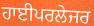
ਹਾਈਪਰਲੇਜਰ